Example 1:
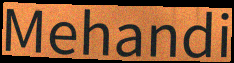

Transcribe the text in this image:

Mehandi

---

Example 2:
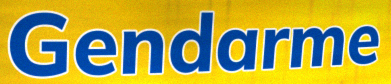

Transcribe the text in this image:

Gendarme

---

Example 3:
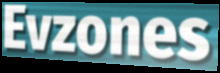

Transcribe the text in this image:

Evzones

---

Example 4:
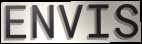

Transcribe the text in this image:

ENVIS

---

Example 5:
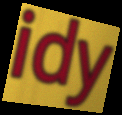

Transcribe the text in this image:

idy